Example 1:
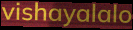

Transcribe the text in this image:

vishayalalo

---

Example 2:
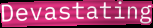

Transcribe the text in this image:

Devastating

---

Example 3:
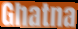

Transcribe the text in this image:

Ghatna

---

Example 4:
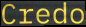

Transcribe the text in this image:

Credo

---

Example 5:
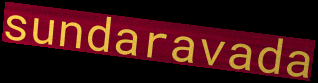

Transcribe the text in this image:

sundaravada